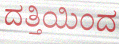
ದತ್ತಿಯಿಂದ